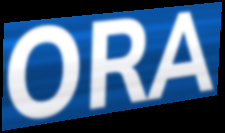
ORA